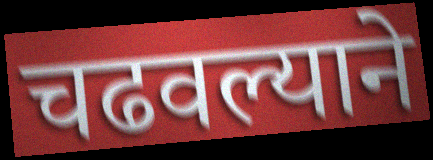
चढवल्याने